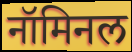
नॉमिनल